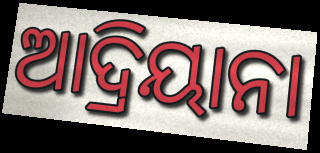
ଆଦ୍ରିୟାନା